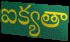
ఐక్యతా